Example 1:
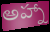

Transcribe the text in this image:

అహ్నా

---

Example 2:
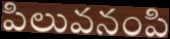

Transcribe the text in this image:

పిలువనంపి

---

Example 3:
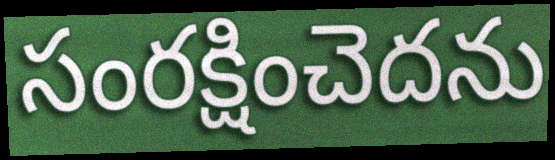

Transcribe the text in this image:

సంరక్షించెదను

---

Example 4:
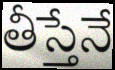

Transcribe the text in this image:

తీస్తేనే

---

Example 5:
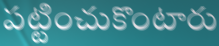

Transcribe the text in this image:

పట్టించుకొంటారు